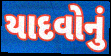
યાદવોનું